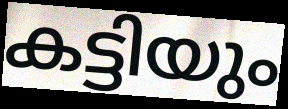
കട്ടിയും